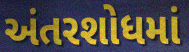
અંતરશોધમાં